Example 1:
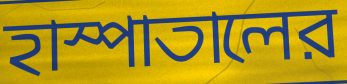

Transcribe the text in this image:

হাস্পাতালের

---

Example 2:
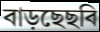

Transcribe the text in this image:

বাড়ছেছবি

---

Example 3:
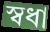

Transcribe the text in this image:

স্বধা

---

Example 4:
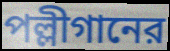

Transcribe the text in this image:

পল্লীগানের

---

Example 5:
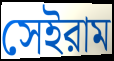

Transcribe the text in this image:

সেইরাম